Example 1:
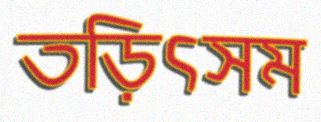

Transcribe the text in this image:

তড়িৎসম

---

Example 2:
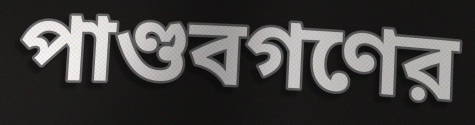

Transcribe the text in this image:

পাণ্ডবগণের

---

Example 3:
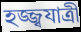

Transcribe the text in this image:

হজ্জ্বযাত্রী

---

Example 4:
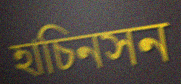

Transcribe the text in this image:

হাচিনসন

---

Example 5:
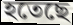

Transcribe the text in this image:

হতেছে